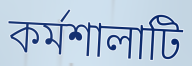
কর্মশালাটি